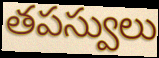
తపస్వులు